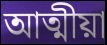
আত্মীয়া